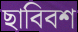
ছাবিবশ